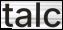
talc